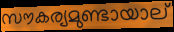
സൗകര്യമുണ്ടായാല്